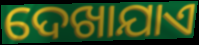
ଦେଖାଯାଏ